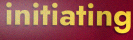
initiating